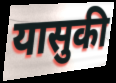
यासुकी